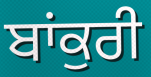
ਬਾਂਕੁਰੀ